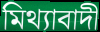
মিথ্যাবাদী